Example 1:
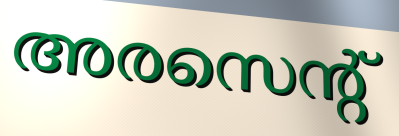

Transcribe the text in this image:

അരസെന്റ്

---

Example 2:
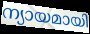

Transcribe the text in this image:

ന്യായമായി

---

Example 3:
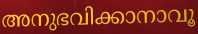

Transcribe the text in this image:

അനുഭവിക്കാനാവൂ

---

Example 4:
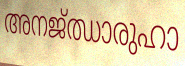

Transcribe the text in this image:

അനജ്ഝാരുഹാ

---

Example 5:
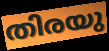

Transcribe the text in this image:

തിരയു